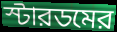
স্টারডমের